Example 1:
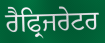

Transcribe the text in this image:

ਰੈਫ੍ਰਿਜਰੇਟਰ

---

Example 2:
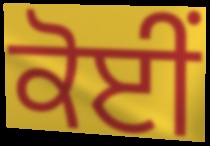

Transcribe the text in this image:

ਕੋਈਂ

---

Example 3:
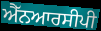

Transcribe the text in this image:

ਐੱਨਆਰਸੀਪੀ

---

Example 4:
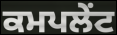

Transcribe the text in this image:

ਕਮਪਲੇਂਟ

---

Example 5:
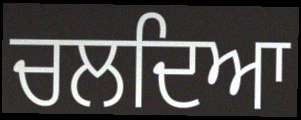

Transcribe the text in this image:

ਚਲਦਿਆ